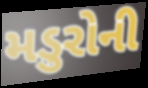
મડુરોની